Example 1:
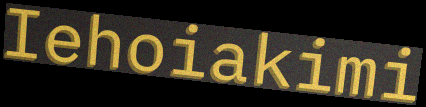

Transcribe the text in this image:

Iehoiakimi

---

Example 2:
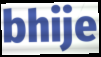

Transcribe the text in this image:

bhije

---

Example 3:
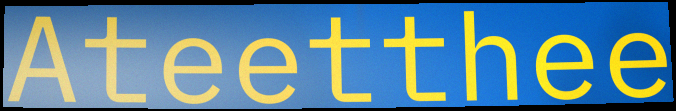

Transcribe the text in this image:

Ateetthee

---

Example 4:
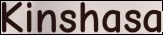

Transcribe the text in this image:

Kinshasa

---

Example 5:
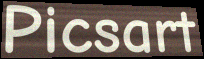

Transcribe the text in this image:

Picsart